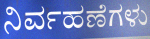
ನಿರ್ವಹಣೆಗಳು